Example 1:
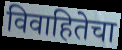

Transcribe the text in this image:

विवाहितेचा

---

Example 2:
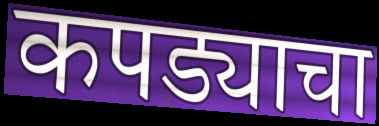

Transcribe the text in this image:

कपड्याचा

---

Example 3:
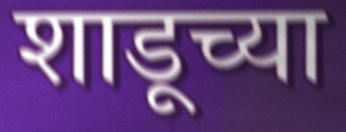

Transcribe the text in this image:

शाडूच्या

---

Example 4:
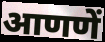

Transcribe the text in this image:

आणणें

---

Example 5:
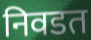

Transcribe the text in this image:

निवडत